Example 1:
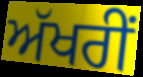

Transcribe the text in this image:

ਅੱਖਰੀਂ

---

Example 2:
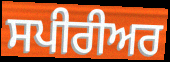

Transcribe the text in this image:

ਸਪੀਰੀਅਰ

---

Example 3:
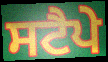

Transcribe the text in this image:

ਸਟੈਪੇ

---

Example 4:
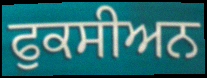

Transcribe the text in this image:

ਫੁਕਸੀਅਨ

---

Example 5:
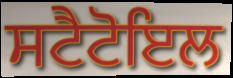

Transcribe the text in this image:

ਸਟੈਟੋਇਲ